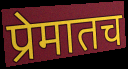
प्रेमातच